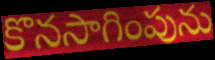
కొనసాగింపును